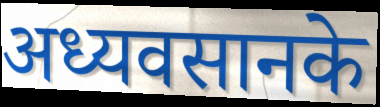
अध्यवसानके